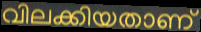
വിലക്കിയതാണ്